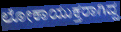
ಲೋಕಾಯುಕ್ತರಾಗಿದ್ದ